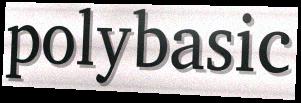
polybasic